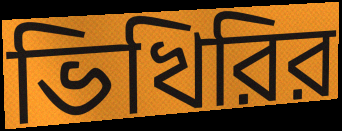
ভিখিরির